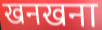
खनखना